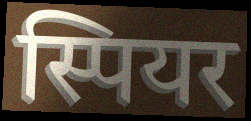
स्पियर